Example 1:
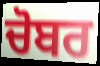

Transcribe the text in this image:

ਚੋਬਰ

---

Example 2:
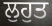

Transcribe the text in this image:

ਲੁਹੁਤ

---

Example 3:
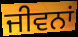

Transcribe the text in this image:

ਜੀਵਨਾਂ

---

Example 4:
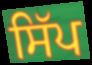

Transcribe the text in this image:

ਸਿੱਪ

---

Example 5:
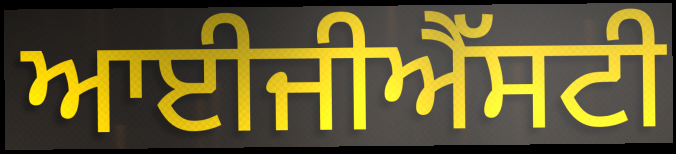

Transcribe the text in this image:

ਆਈਜੀਐੱਸਟੀ